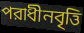
পরাধীনবৃত্তি